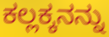
ಕಲ್ಲಕ್ಕನನ್ನು